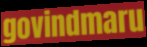
govindmaru